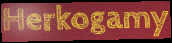
Herkogamy